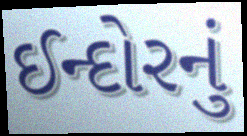
ઈન્દોરનું